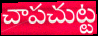
చాపచుట్ట